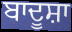
ਬਾਦੂਸ਼ਾ